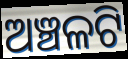
ଅଞ୍ଚଳଟି